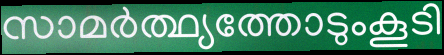
സാമർത്ഥ്യത്തോടുംകൂടി